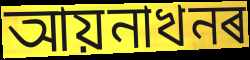
আয়নাখনৰ